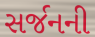
સર્જનની